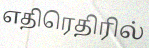
எதிரெதிரில்